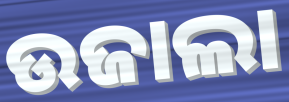
ଉଜାଲା